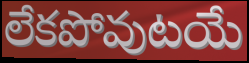
లేకపోవుటయే